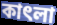
কাৎলা